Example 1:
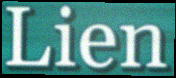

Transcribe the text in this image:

Lien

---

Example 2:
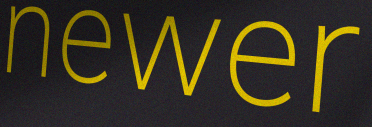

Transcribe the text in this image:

newer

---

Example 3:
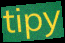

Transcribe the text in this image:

tipy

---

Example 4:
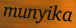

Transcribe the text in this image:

munyika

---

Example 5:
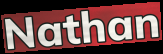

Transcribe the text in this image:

Nathan